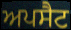
ਅਪਸੈਟ